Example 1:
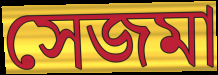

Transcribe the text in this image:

সেজমা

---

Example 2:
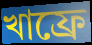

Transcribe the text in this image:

খাফ্রে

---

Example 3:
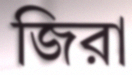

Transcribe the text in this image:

জিরা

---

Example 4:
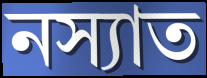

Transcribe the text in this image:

নস্যাত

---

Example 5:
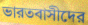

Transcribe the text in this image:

ভারতবাসীদের